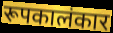
रूपकालंकार